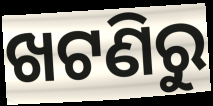
ଖଟଣିରୁ